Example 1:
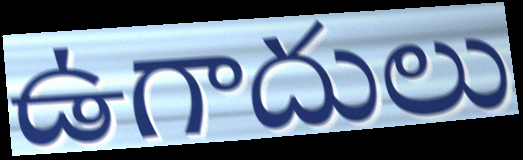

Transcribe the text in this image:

ఉగాదులు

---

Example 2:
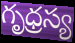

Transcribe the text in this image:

గృధ్రస్య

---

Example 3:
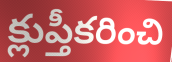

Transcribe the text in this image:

క్లుప్తీకరించి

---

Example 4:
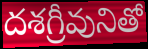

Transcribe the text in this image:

దశగ్రీవునితో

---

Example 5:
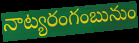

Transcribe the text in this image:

నాట్యరంగంబునుం